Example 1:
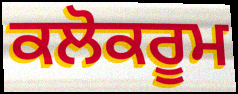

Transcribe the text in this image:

ਕਲੋਕਰੂਮ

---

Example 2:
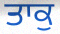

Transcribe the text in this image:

ਤਾਕੁ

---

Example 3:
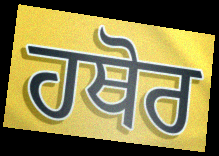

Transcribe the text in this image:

ਹਥੋਰ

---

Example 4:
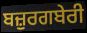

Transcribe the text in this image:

ਬਜ਼ੁਰਗਬੇਰੀ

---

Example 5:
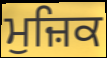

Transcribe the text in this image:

ਮੁਜ਼ਿਕ